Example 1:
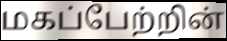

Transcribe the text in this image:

மகப்பேற்றின்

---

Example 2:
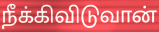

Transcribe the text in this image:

நீக்கிவிடுவான்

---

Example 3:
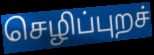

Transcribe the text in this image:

செழிப்புறச்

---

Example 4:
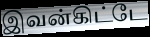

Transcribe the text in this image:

இவன்கிட்டே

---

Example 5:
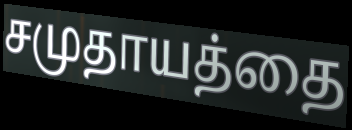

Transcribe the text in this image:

சமுதாயத்தை